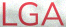
LGA